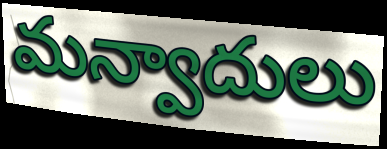
మన్వాదులు